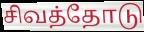
சிவத்தோடு